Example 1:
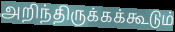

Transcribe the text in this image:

அறிந்திருக்கக்கூடும்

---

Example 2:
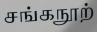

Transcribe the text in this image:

சங்கநூற்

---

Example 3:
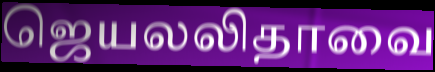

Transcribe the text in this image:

ஜெயலலிதாவை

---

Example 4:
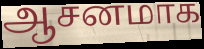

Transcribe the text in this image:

ஆசனமாக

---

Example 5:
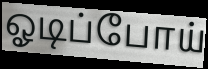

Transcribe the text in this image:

ஓடிப்போய்